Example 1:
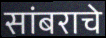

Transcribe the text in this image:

सांबराचे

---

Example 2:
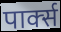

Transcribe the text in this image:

पार्क्‍स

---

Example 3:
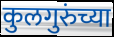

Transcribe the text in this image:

कुलगुरुंच्या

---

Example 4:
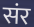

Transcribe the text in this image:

संर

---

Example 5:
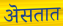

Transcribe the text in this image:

ऄसतात